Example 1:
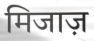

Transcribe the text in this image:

मिजाज़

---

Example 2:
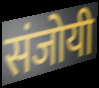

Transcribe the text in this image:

संजोयी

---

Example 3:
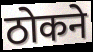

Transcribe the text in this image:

ठोकने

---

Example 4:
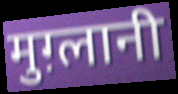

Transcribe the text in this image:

मुग़्लानी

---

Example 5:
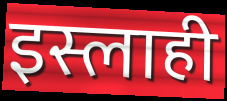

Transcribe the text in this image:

इस्लाही